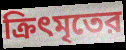
ক্রিৎমৃতের